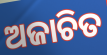
ଅଜାଚିତ